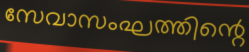
സേവാസംഘത്തിന്റെ